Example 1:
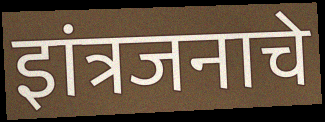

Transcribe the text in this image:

इांत्रजनाचे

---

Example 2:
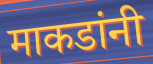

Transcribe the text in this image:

माकडांनी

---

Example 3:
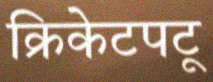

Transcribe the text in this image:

क्रिकेटपटू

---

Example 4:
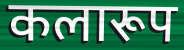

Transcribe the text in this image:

कलारूप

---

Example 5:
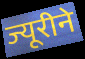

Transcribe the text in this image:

ज्यूरीने